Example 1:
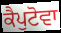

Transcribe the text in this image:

ਕੈਪੁਟੋਵਾ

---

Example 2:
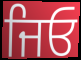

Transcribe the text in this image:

ਜਿਓ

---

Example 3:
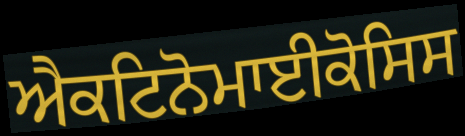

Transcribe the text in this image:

ਐਕਟਿਨੋਮਾਈਕੋਸਿਸ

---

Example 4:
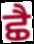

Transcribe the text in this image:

ਛੈ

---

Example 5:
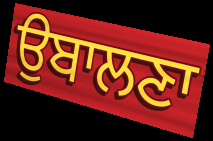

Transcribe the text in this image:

ਉਬਾਲਣਾ